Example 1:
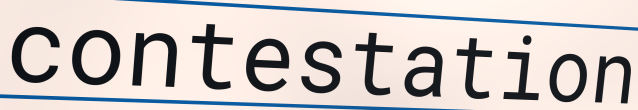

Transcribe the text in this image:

contestation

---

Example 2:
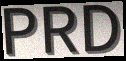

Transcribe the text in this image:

PRD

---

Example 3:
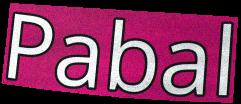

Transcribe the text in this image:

Pabal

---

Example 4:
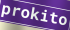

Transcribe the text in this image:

prokito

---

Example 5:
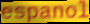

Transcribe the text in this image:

espanol